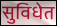
सुविधेत